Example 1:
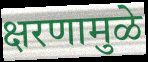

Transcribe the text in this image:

क्षरणामुळे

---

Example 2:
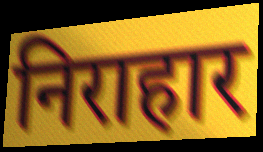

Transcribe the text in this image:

निराहार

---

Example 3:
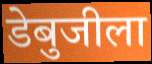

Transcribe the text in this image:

डेबुजीला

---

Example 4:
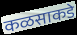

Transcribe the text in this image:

कळसाकडे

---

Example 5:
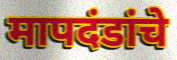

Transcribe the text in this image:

मापदंडांचे